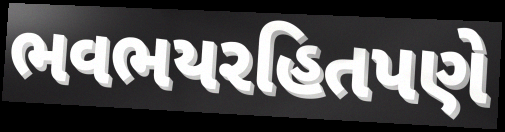
ભવભયરહિતપણે